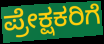
ಪ್ರೇಕ್ಷಕರಿಗೆ